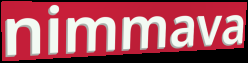
nimmava